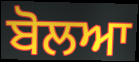
ਬੋਲਆ